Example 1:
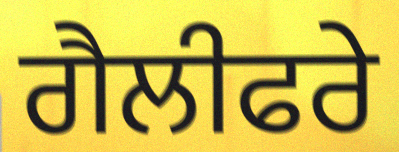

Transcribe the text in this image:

ਗੈਲੀਫਰੇ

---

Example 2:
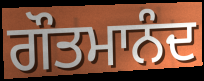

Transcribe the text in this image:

ਗੌਤਮਾਨੰਦ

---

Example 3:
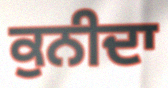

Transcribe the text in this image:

ਕੁਨੀਦਾ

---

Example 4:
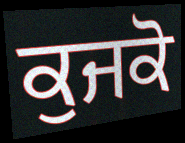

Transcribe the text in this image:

ਕੁਜਕੋ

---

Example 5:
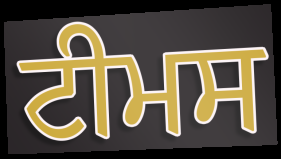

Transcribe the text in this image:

ਟੀਮਸ